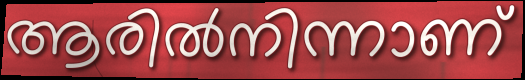
ആരിൽനിന്നാണ്